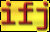
ifj